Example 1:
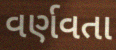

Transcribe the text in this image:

વર્ણવતા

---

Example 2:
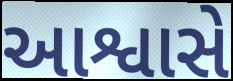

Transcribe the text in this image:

આશ્વાસે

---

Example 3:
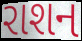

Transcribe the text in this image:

રાશન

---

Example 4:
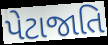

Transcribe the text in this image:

પેટાજાતિ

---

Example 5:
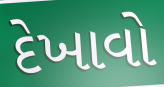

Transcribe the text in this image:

દેખાવો